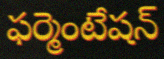
ఫర్మెంటేషన్